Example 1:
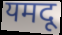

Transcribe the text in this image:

यमदू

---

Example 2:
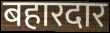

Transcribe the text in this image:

बहारदार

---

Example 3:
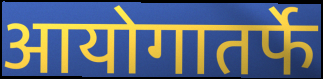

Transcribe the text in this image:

आयोगातर्फे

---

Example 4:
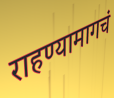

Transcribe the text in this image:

राहण्यामागचं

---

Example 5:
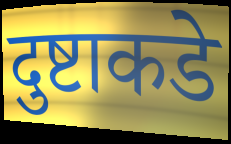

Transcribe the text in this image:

दुष्टाकडे